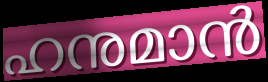
ഹനുമാൻ